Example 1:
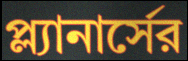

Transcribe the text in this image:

প্ল্যানার্সের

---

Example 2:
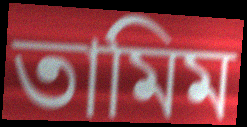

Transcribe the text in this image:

তামিম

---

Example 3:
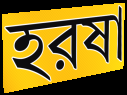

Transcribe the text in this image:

হরষা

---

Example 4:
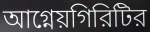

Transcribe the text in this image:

আগ্নেয়গিরিটির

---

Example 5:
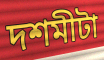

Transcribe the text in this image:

দশমীটা